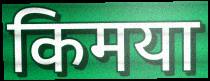
किमया